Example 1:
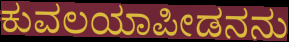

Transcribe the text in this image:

ಕುವಲಯಾಪೀಡನನು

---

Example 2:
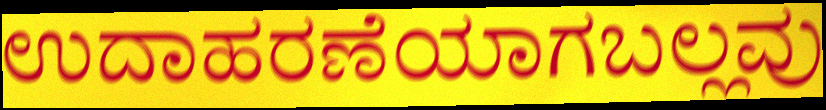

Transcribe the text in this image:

ಉದಾಹರಣೆಯಾಗಬಲ್ಲವು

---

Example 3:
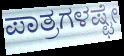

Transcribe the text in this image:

ಪಾತ್ರಗಳಷ್ಟೇ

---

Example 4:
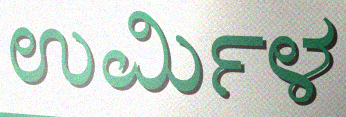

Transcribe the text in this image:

ಉರ್ಮಿಳ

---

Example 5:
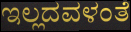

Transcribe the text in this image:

ಇಲ್ಲದವಳಂತೆ